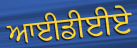
ਆਈਡੀਈਏ